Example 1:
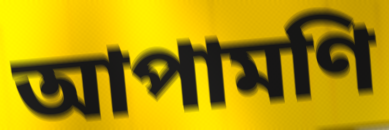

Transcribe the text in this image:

আপামণি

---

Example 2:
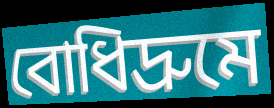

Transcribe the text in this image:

বোধিদ্রুমে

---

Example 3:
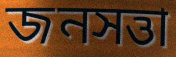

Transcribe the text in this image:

জনসত্তা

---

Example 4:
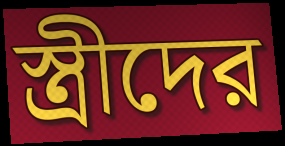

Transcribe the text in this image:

স্ত্রীদের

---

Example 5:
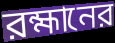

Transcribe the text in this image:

রহ্মানের